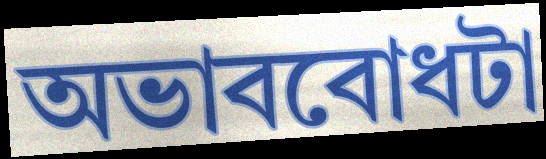
অভাববোধটা